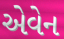
એવેન